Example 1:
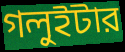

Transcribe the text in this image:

গলুইটার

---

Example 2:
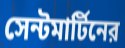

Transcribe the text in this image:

সেন্টমার্টিনের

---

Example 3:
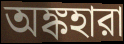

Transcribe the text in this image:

অঙ্কহারা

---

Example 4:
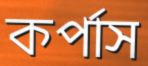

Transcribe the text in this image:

কর্পাস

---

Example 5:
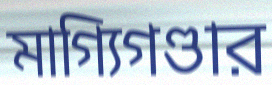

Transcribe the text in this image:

মাগ্যিগণ্ডার